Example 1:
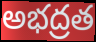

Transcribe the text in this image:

అభద్రత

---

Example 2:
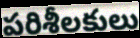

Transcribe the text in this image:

పరిశీలకులు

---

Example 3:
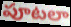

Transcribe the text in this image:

పూటలా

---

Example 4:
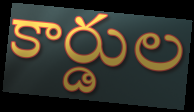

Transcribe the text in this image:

కార్డుల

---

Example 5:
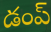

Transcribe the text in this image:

డంప్